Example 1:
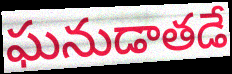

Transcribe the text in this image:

ఘనుడాతడే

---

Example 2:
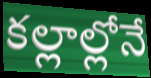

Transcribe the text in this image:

కల్లాల్లోనే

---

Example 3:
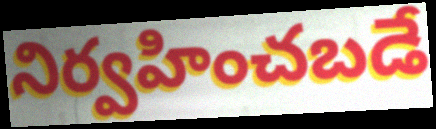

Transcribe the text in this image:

నిర్వహించబడే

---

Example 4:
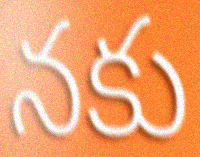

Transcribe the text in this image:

నకు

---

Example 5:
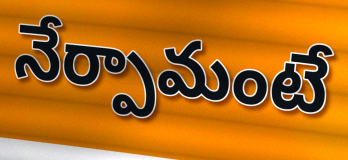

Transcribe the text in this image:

నేర్పామంటే